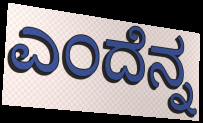
ಎಂದೆನ್ನ